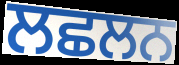
ਲਛਲਨ